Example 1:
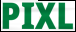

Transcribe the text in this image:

PIXL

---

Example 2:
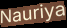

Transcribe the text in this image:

Nauriya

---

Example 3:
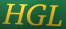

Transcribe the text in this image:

HGL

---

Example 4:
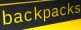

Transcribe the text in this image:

backpacks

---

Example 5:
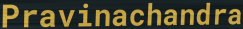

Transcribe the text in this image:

Pravinachandra